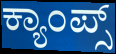
ಕ್ಯಾಂಪ್ಸ್